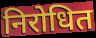
निरोधित